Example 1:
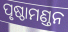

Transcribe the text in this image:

ପୃଷ୍ଠାମଣ୍ଡନ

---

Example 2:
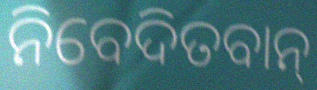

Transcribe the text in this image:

ନିବେଦିତବାନ୍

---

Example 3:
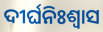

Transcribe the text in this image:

ଦୀର୍ଘନିଃଶ୍ବାସ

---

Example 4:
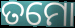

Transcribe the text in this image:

ତମୋ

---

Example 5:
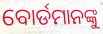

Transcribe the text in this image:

ବୋର୍ଡମାନଙ୍କୁ